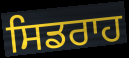
ਸਿਡਰਾਹ